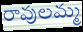
రావులమ్మ